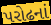
પરોઢનાં